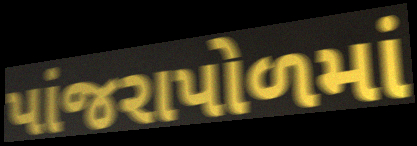
પાંજરાપોળમાં